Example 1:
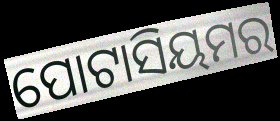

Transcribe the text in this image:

ପୋଟାସିୟମର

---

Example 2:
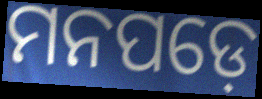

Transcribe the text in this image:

ମନପଡ଼େ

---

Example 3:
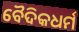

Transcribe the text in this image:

ବୈଦିକଧର୍ମ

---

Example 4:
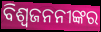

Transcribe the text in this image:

ବିଶ୍ୱଜନନୀଙ୍କର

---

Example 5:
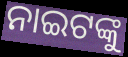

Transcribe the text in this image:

ନାଇଟଙ୍କୁ